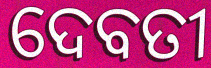
ଦେବତୀ